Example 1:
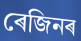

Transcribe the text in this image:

ৰেজিনৰ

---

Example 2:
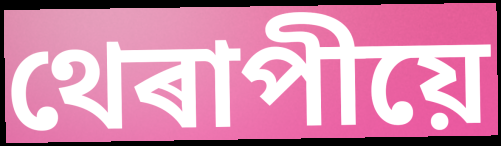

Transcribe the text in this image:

থেৰাপীয়ে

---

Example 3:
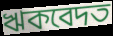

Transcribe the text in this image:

ঋকবেদত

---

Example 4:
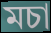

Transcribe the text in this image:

মচা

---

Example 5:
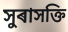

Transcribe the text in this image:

সুৰাসক্তি